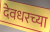
देवधरच्या